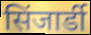
सिंजार्डी